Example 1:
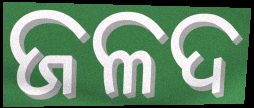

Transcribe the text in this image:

ଜଳଦ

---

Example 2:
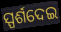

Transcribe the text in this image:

ସ୍ପର୍ଶଦେଇ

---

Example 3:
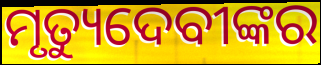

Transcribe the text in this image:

ମୃତ୍ୟୁଦେବୀଙ୍କର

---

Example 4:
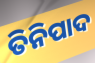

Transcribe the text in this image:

ତିନିପାଦ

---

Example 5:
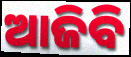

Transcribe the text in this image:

ଆଜିବି